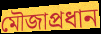
মৌজাপ্রধান